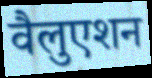
वैलुएशन